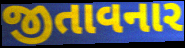
જીતાવનાર